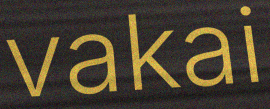
vakai